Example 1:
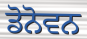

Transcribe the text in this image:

ਡੋਨੋਵਨ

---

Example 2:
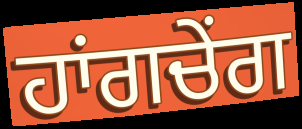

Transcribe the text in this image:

ਹਾਂਗਚੇਂਗ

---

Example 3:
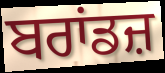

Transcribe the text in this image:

ਬਰਾਂਡਜ਼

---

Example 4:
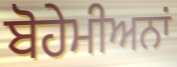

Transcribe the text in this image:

ਬੋਹੇਮੀਅਨਾਂ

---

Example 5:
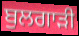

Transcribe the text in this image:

ਬੁਲਗਾੜੀ